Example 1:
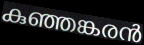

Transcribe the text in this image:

കുഞ്ഞങ്കരൻ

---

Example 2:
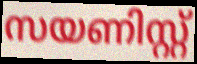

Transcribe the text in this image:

സയണിസ്റ്റ്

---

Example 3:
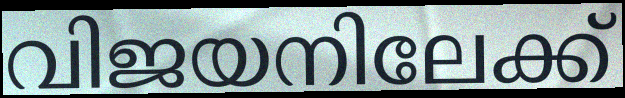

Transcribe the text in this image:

വിജയനിലേക്ക്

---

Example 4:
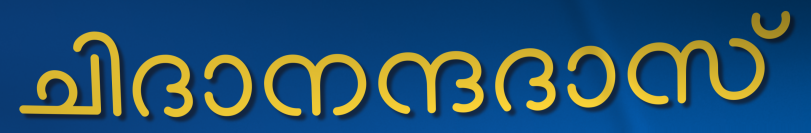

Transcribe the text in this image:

ചിദാനന്ദദാസ്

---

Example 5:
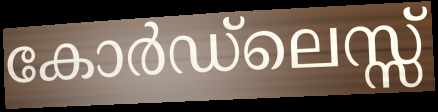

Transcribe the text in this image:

കോർഡ്ലെസ്സ്